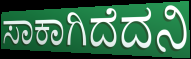
ಸಾಕಾಗಿದೆದನಿ